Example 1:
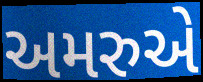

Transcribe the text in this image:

અમરુએ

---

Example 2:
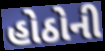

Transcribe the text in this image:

હોઠોની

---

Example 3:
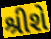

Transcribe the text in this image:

શ્રીશે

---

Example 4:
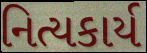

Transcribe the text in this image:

નિત્યકાર્ય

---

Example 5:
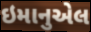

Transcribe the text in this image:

ઇમાનુએલ